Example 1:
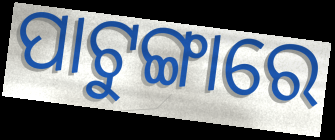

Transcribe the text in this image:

ପାଟୁଙ୍ଗାରେ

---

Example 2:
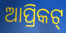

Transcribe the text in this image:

ଆପ୍ରିକଟ୍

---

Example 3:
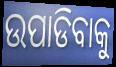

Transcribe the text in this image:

ଉପାଡିବାକୁ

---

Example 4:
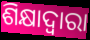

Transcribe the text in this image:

ଶିକ୍ଷାଦ୍ୱାରା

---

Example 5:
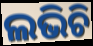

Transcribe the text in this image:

ଲଭିଚି